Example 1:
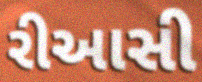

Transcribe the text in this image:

રીઆસી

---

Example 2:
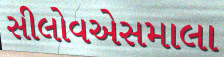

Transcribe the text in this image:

સીલોવએસમાલા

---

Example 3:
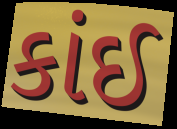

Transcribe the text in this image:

કાંઈ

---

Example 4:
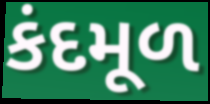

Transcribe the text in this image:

કંદમૂળ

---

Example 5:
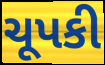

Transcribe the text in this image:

ચૂપકી